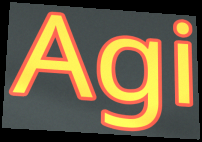
Agi